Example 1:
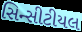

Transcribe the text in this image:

સિન્સીટીયલ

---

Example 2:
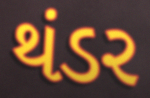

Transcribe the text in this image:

થંડર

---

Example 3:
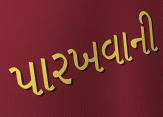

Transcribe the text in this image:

પારખવાની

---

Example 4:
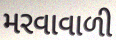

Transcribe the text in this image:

મરવાવાળી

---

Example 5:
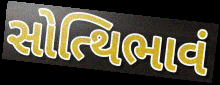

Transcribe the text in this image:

સોત્થિભાવં